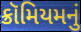
ક્રૉમિયમનું